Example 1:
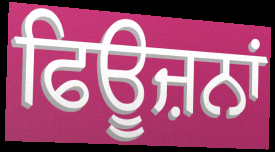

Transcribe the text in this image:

ਫਿਊਜ਼ਨਾਂ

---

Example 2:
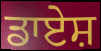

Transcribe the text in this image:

ਡਾਏਸ਼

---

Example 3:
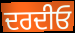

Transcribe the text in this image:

ਦਰਦੀਓ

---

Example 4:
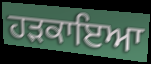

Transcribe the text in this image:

ਹੜਕਾਇਆ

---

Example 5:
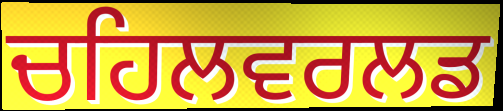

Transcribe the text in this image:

ਚਹਿਲਵਰਲਡ